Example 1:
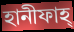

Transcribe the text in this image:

হানীফাহ্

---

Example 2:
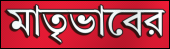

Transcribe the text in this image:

মাতৃভাবের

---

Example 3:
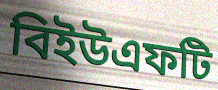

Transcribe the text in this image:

বিইউএফটি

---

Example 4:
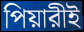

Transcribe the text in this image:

পিয়ারীই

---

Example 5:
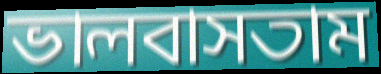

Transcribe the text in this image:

ভালবাসতাম